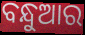
ବନ୍ଧୁଆର